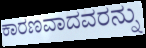
ಕಾರಣವಾದವರನ್ನು